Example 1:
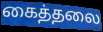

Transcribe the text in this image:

கைத்தலை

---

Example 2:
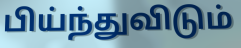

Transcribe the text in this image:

பிய்ந்துவிடும்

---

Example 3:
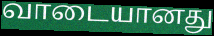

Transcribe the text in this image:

வாடையானது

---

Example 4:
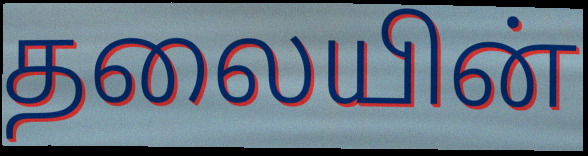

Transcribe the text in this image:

தலையின்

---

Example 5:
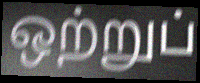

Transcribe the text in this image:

ஒற்றுப்